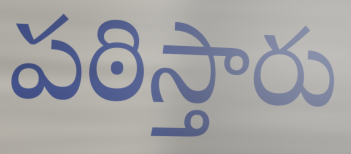
పఠిస్తారు